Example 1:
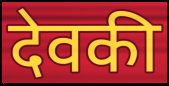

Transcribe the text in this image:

देवकी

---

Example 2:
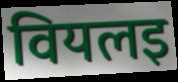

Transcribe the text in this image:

वियलइ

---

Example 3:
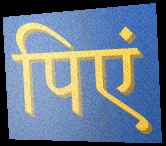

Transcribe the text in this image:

पिएं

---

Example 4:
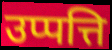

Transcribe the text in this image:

उप्पत्ति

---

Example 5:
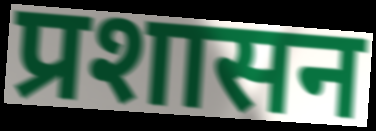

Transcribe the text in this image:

प्रशासन